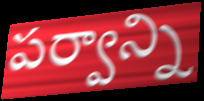
పర్వాన్ని